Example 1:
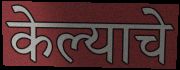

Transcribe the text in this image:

केल्याचे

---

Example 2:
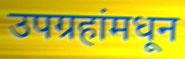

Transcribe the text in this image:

उपग्रहांमधून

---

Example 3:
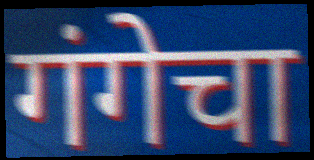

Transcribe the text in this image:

गंगेचा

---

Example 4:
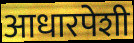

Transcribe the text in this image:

आधारपेशी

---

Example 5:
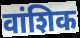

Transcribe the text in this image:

वांशिक